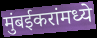
मुंबईकरांमध्ये